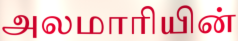
அலமாரியின்